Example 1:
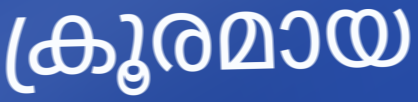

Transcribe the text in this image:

ക്രൂരമായ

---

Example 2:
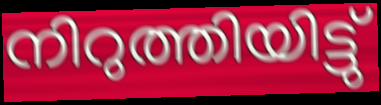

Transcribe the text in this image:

നിറുത്തിയിട്ടു്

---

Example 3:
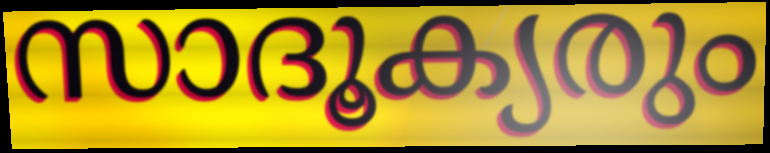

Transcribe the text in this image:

സാദൂക്യരും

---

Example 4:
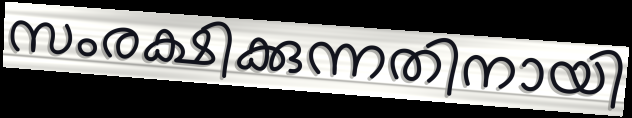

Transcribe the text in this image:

സംരക്ഷിക്കുന്നതിനായി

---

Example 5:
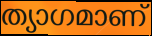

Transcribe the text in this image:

ത്യാഗമാണ്